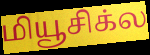
மியூசிக்ல